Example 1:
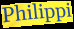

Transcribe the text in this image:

Philippi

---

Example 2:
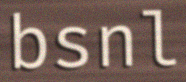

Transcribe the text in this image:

bsnl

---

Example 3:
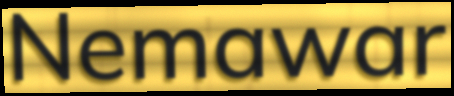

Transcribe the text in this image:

Nemawar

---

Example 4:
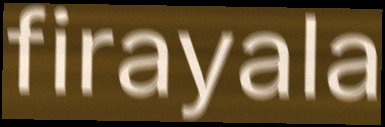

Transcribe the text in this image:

firayala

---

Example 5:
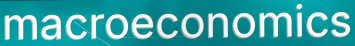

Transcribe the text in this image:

macroeconomics